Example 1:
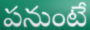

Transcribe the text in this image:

పనుంటే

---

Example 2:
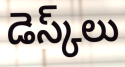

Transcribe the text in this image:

డెస్క్‌లు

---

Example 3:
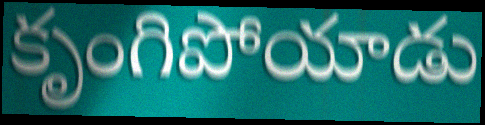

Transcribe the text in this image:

కృంగిపోయాడు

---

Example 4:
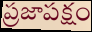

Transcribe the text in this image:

ప్రజాపక్షం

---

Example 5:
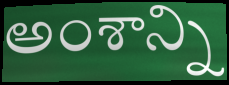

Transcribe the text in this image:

అంశాన్ని